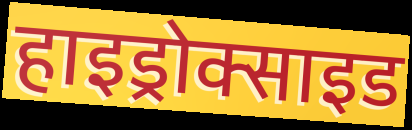
हाइड्रोक्साइड